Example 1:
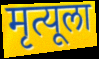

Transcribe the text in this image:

मृत्यूला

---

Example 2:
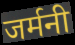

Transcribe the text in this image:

जर्मनी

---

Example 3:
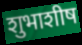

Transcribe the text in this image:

शुभाशीष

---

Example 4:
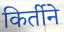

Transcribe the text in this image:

किर्तीने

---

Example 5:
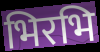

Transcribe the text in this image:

भिरभि